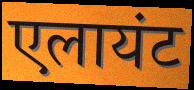
एलायंट